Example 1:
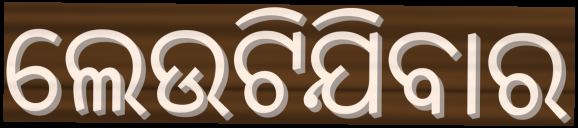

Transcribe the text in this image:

ଲେଉଟିଯିବାର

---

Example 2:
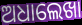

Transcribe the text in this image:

ଅଧାଲେଖା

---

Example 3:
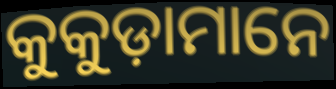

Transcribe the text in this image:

କୁକୁଡ଼ାମାନେ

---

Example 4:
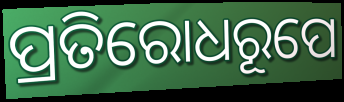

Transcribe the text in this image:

ପ୍ରତିରୋଧରୂପେ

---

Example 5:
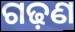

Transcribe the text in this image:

ଗଢ଼ଣ